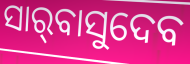
ସାର୍‌ବାସୁଦେବ